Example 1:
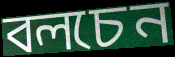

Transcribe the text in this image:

বলচেন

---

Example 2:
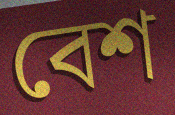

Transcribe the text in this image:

বেশ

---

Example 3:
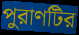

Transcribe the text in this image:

পুরাণটির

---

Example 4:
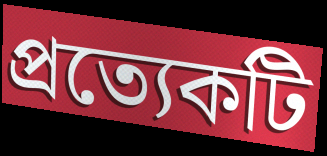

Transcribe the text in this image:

প্রত্যেকটি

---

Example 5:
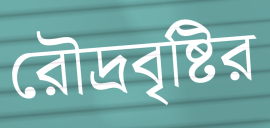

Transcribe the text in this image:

রৌদ্রবৃষ্টির